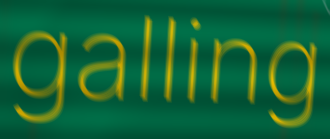
galling